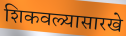
शिकवल्यासारखे